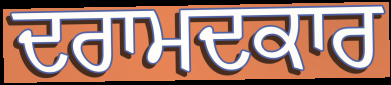
ਦਰਾਮਦਕਾਰ